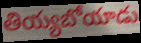
తియ్యబోయాడు